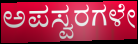
ಅಪಸ್ವರಗಳೇ